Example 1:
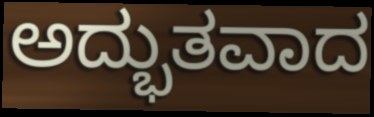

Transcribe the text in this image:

ಅದ್ಭುತವಾದ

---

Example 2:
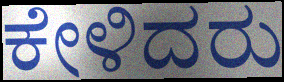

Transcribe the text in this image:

ಕೇಳಿದರು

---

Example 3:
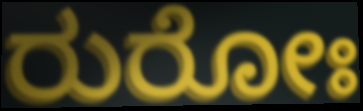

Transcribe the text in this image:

ರುರೋಃ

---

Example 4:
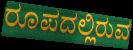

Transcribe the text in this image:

ರೂಪದಲ್ಲಿರುವ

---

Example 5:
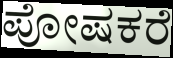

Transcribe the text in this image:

ಪೋಷಕರೆ